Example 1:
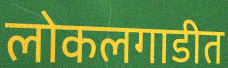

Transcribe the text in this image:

लोकलगाडीत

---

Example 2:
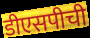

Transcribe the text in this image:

डीएसपीची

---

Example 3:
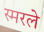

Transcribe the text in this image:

स्मरले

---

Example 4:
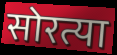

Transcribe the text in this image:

सोरत्या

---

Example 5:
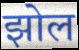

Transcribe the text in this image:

झोल